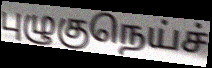
புழுகுநெய்ச்